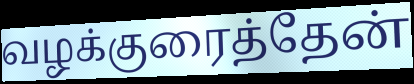
வழக்குரைத்தேன்